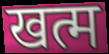
खत्म